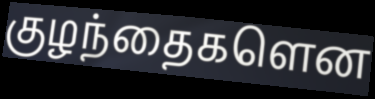
குழந்தைகளென